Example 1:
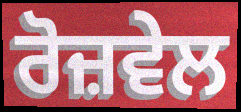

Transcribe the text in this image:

ਰੋਜ਼ਵੇਲ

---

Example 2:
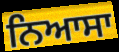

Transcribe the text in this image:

ਨਿਆਸਾ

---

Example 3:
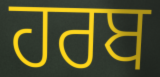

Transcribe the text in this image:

ਹਰਬ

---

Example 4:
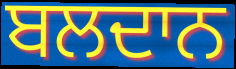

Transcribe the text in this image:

ਬਲਦਾਨ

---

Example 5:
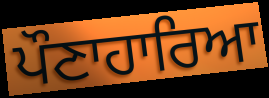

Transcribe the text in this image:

ਪੌਣਾਹਾਰਿਆ